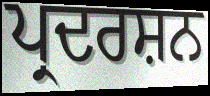
ਪ੍ਰਦਰਸ਼ਨ